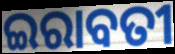
ଇରାବତୀ